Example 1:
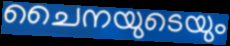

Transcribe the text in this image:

ചൈനയുടെയും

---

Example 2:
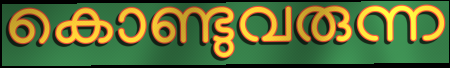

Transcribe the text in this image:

കൊണ്ടുവരുന്ന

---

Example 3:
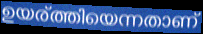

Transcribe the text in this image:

ഉയര്ത്തിയെന്നതാണ്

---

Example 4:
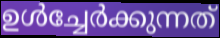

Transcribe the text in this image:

ഉൾച്ചേർക്കുന്നത്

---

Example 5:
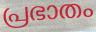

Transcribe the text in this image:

പ്രഭാതം